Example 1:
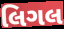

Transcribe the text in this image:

લિગલ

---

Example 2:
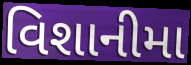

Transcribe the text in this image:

વિશાનીમા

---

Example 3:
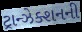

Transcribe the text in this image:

ટ્રાન્ઝેક્શનની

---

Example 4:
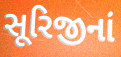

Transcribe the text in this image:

સૂરિજીનાં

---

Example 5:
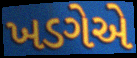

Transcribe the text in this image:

ખડગેએ